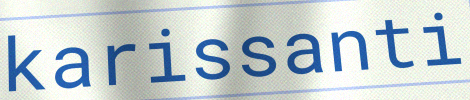
karissanti